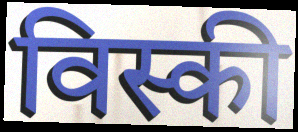
विस्की